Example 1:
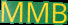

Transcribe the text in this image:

MMB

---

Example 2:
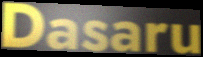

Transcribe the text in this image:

Dasaru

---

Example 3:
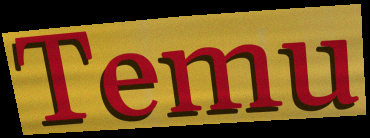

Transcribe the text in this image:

Temu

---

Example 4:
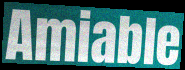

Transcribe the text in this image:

Amiable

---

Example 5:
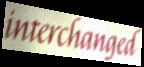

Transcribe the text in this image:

interchanged